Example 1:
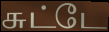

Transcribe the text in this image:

சுட்டே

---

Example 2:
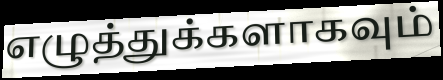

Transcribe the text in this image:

எழுத்துக்களாகவும்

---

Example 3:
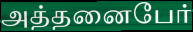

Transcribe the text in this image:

அத்தனைபேர்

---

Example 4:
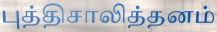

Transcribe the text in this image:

புத்திசாலித்தனம்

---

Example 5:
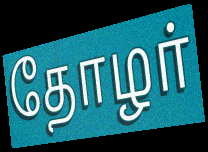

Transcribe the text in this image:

தோழர்